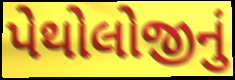
પેથોલોજીનું